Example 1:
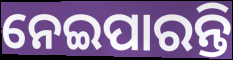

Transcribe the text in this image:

ନେଇପାରନ୍ତି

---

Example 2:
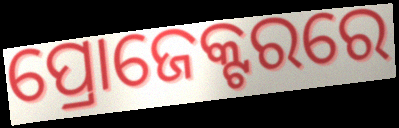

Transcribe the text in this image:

ପ୍ରୋଜେକ୍ଟରରେ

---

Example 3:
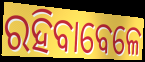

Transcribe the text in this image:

ରହିବାବେଳେ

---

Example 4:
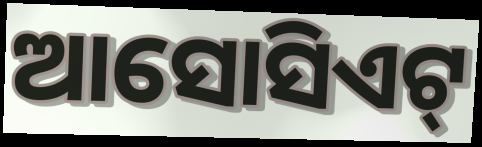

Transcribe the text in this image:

ଆସୋସିଏଟ୍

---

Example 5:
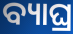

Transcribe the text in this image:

ବ୍ୟାଘ୍ର